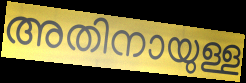
അതിനായുള്ള